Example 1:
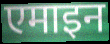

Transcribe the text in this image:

एमाइन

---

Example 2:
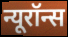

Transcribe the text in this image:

न्यूरॉन्स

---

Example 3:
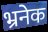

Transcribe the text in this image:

भ्रनेक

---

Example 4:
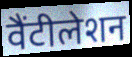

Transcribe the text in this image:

वैंटीलेशन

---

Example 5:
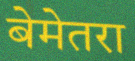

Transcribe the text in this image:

बेमेतरा